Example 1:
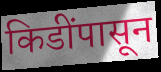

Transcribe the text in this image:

किडींपासून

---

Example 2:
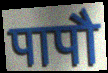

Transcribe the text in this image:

पापौ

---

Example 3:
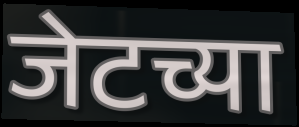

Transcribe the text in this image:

जेटच्या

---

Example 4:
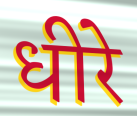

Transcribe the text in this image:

धीरे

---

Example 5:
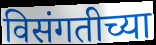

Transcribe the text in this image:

विसंगतीच्या